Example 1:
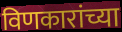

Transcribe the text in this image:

विणकारांच्या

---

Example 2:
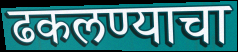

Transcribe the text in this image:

ढकलण्याचा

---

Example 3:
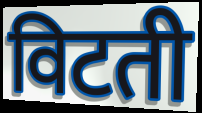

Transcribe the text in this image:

विटती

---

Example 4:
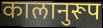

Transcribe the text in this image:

कालानुरूप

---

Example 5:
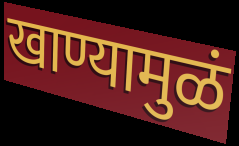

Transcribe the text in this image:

खाण्यामुळं